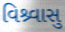
વિશ્ર્વાસુ